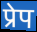
प्रेप